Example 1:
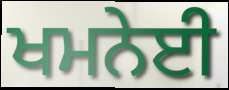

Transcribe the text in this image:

ਖਮਨੇਈ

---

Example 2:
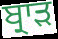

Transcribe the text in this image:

ਬ੍ਰਾੜ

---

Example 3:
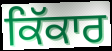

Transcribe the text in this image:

ਕਿੱਕਾਰ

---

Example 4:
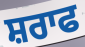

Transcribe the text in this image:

ਸ਼ਰਾਫ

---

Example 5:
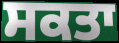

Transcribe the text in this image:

ਸਕਤਾ